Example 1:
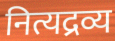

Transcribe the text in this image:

नित्यद्रव्य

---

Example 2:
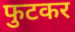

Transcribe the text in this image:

फुटकर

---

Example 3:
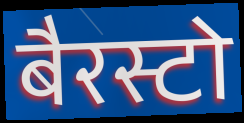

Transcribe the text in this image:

बैरस्टो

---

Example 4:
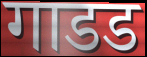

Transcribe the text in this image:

गाडड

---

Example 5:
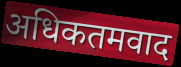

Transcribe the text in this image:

अधिकतमवाद